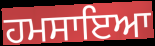
ਹਮਸਾਇਆ